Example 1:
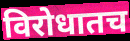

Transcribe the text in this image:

विरोधातच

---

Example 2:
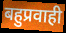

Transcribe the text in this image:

बहुप्रवाही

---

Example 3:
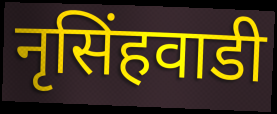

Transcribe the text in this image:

नृसिंहवाडी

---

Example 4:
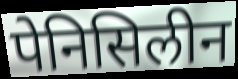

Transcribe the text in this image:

पेनिसिलीन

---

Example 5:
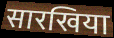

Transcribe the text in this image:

सारखिया